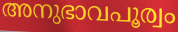
അനുഭാവപൂര്വം